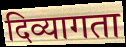
दिव्यागता